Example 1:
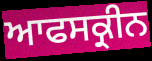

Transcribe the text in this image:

ਆਫਸਕ੍ਰੀਨ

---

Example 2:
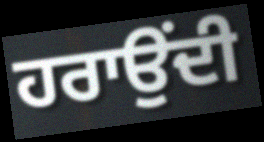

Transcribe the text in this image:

ਹਰਾਉਂਦੀ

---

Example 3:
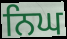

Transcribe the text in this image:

ਨਿਘ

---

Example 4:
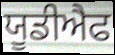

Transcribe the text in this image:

ਯੂਡੀਐਫ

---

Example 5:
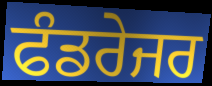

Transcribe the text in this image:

ਫੰਡਰੇਜਰ